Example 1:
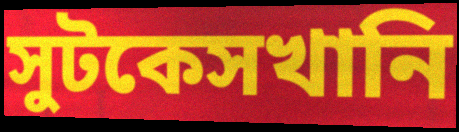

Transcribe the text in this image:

সুটকেসখানি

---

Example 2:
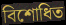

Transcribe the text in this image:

বিশোধিত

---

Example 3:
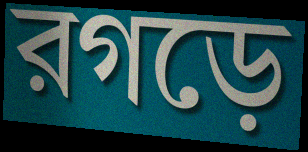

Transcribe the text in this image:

রগড়ে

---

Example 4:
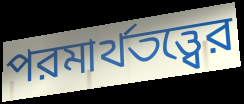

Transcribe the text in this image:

পরমার্থতত্ত্বের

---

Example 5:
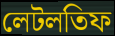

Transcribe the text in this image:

লেটলতিফ